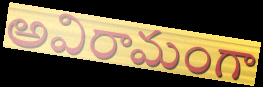
అవిరామంగా